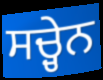
ਸਚ੍ਚੇਨ